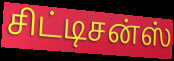
சிட்டிசன்ஸ்